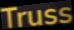
Truss